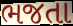
ભજતા